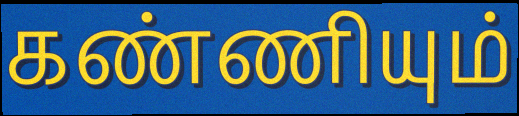
கண்ணியும்